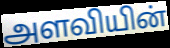
அளவியின்